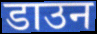
डाउन